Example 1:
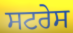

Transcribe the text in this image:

ਸਟਰੇਸ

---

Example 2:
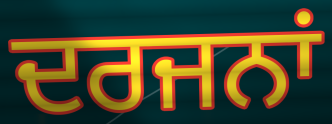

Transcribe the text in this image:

ਦਰਜਨਾਂ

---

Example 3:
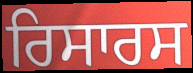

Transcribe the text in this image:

ਰਿਸਾਰਸ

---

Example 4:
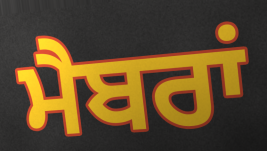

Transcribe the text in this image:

ਮੈਬਰਾਂ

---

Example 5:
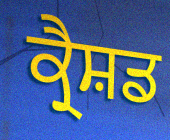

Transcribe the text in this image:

ਕ੍ਰੈਸ਼ਡ